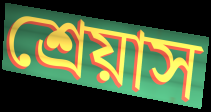
শ্রেয়াস